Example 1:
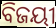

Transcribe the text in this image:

ବିଜୟୀ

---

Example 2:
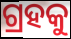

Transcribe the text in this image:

ଗ୍ରହକୁ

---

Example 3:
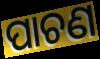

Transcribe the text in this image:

ପାଚଣ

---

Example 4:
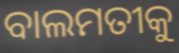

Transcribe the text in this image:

ବାଲମତୀକୁ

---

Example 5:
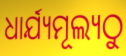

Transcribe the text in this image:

ଧାର୍ଯ୍ୟମୂଲ୍ୟଠୁ